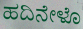
ಹದಿನೇಳೊ